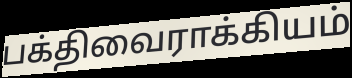
பக்திவைராக்கியம்